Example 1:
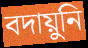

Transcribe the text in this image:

বদায়ুনি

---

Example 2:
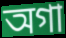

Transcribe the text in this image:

অগা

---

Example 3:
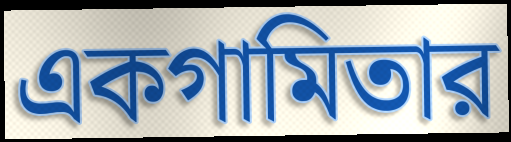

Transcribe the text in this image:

একগামিতার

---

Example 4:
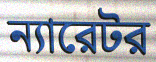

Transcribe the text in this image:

ন্যারেটর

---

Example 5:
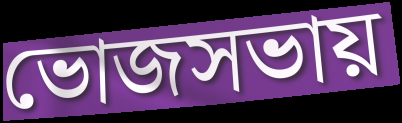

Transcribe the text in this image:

ভোজসভায়